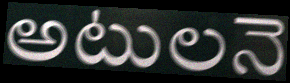
అటులనె